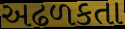
અઢળકતા